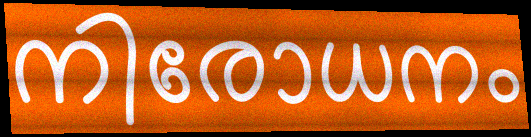
നിരോധനം